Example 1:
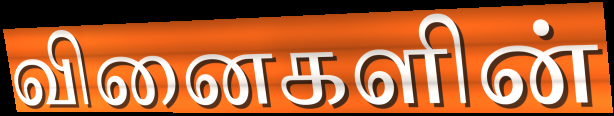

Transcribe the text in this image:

வினைகளின்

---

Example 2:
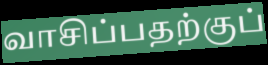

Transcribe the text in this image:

வாசிப்பதற்குப்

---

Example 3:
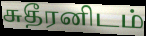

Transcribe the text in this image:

சுதீரனிடம்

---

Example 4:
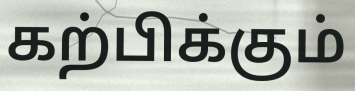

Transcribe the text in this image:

கற்பிக்கும்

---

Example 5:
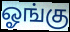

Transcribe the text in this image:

ஓங்கு